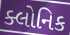
ક્લોનિક